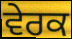
ਵੇਰਕ